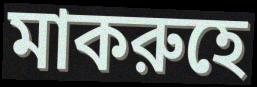
মাকরুহে